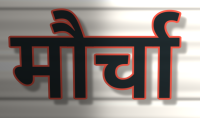
मौर्चा